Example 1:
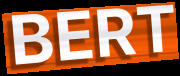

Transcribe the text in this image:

BERT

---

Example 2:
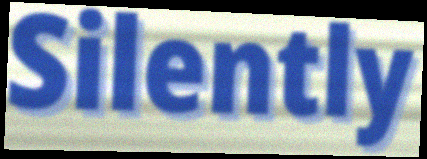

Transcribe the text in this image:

Silently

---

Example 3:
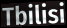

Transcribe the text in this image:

Tbilisi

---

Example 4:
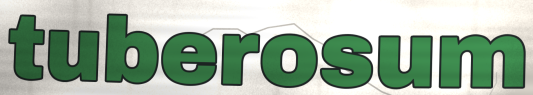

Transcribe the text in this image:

tuberosum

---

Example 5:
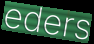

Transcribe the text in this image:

eders